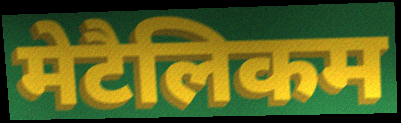
मेटैलिकम